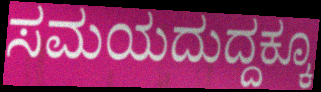
ಸಮಯದುದ್ದಕ್ಕೂ